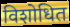
विशोधित